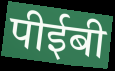
पीईबी